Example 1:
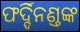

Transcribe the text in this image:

ଫର୍ଦ୍ଦିନଣ୍ଡଙ୍କ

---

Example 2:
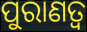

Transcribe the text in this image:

ପୁରାଣତ୍ୱ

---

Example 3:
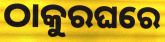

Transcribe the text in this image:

ଠାକୁରଘରେ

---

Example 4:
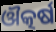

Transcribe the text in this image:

ଔତ୍କର୍ଷ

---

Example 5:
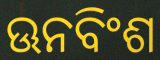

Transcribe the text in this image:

ଊନବିଂଶ